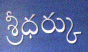
శ్రీధర్కు